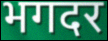
भगदर